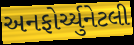
અનફોર્ચ્યુનેટલી